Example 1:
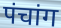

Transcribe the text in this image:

पंचांग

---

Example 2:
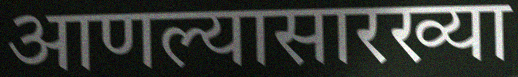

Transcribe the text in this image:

आणल्यासारख्या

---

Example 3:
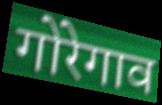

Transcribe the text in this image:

गोरेगाव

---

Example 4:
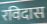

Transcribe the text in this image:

रविदास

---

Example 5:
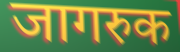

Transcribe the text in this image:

जागरुक